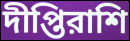
দীপ্তিরাশি